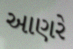
આણરે